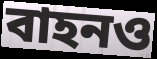
বাহনও